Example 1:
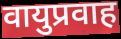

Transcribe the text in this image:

वायुप्रवाह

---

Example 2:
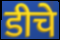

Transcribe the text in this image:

डीचे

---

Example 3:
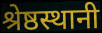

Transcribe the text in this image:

श्रेष्ठस्थानी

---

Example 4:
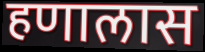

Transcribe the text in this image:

हणालास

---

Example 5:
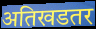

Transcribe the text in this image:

अतिखडतर